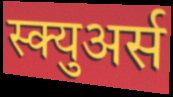
स्क्युअर्स